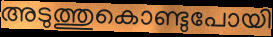
അടുത്തുകൊണ്ടുപോയി